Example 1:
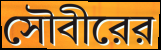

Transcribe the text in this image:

সৌবীরের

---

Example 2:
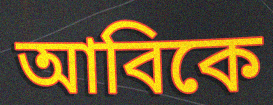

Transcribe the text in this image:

আবিকে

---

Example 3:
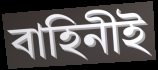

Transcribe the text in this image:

বাহিনীই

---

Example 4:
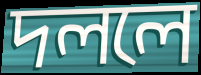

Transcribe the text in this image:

দললে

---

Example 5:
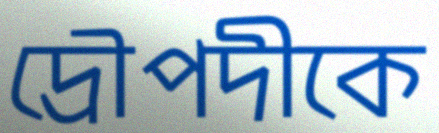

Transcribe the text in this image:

দ্রৌপদীকে